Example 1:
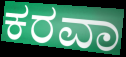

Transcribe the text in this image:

ಕರವಾ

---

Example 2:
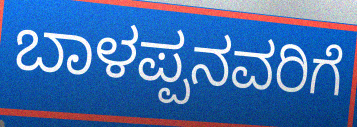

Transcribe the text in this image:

ಬಾಳಪ್ಪನವರಿಗೆ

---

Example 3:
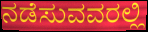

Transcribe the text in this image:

ನಡೆಸುವವರಲ್ಲಿ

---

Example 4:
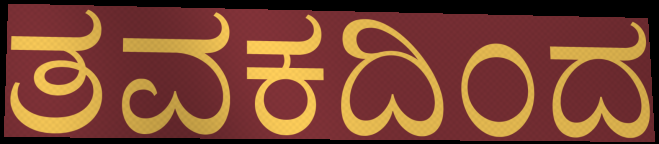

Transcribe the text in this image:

ತವಕದಿಂದ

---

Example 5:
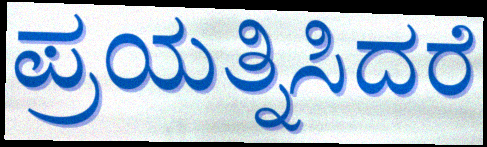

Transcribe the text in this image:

ಪ್ರಯತ್ನಿಸಿದರೆ